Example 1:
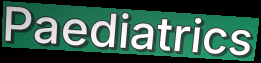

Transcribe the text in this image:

Paediatrics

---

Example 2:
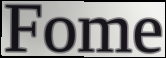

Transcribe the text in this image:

Fome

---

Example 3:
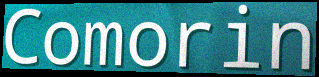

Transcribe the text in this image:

Comorin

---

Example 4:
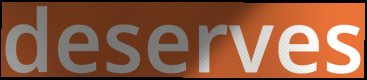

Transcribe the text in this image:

deserves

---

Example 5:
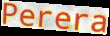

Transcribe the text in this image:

Perera